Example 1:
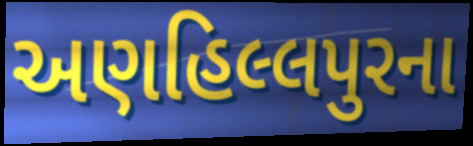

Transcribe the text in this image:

અણહિલ્લપુરના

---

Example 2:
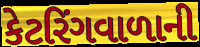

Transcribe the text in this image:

કેટરિંગવાળાની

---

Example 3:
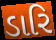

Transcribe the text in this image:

ડારિ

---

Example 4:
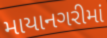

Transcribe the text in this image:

માયાનગરીમાં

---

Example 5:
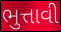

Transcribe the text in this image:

ભુત્તાવી